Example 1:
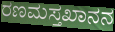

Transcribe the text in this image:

ರಣಮಸ್ತಖಾನನ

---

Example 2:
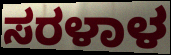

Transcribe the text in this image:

ಸರಳಾಳ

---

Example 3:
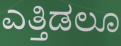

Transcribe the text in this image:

ಎತ್ತಿಡಲೂ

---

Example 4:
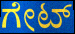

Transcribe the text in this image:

ಗೇಟ್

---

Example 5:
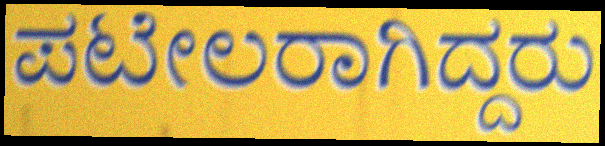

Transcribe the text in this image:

ಪಟೇಲರಾಗಿದ್ದರು